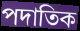
পদাতিক